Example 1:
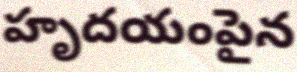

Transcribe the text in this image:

హృదయంపైన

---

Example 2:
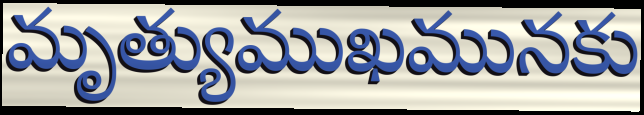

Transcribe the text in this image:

మృత్యుముఖమునకు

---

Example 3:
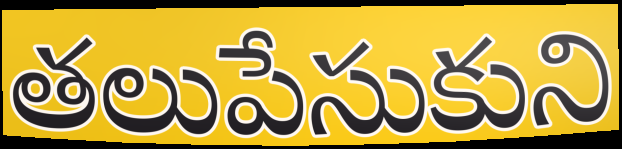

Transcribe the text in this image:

తలుపేసుకుని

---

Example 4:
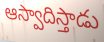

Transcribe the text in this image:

ఆస్వాదిస్తాడు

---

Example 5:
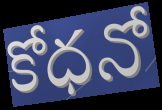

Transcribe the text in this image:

కోధనో